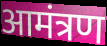
आमंत्रण